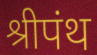
श्रीपंथ